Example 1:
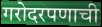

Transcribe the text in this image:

गरोदरपणाची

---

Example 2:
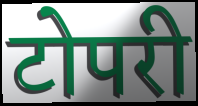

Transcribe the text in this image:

टोपरी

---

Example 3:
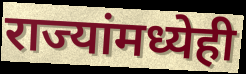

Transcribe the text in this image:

राज्यांमध्येही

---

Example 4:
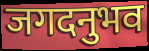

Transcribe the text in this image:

जगदनुभव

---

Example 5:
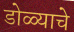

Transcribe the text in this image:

डोळ्याचे